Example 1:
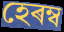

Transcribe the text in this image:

হেৰম্ব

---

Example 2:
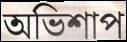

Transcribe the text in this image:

অভিশাপ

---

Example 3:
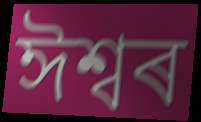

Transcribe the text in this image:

ঈশ্বৰ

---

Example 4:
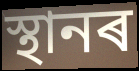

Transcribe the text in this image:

স্থানৰ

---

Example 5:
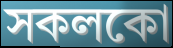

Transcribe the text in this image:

সকলকো